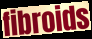
fibroids